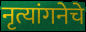
नृत्यांगनेचे